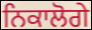
ਨਿਕਾਲੋਗੇ